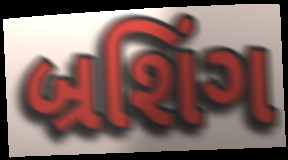
બ્રશિંગ